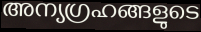
അന്യഗ്രഹങ്ങളുടെ